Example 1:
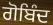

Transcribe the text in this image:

ਗੋਬਿੰਦ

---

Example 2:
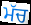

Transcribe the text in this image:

ਮੱਚ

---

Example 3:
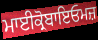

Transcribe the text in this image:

ਮਾਈਕ੍ਰੋਬਾਇਓਮਜ਼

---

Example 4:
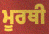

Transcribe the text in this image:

ਮੂਰਥੀ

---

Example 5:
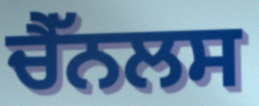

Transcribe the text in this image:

ਚੈੱਨਲਸ